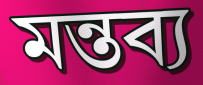
মন্তব্য